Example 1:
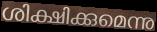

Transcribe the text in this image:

ശിക്ഷിക്കുമെന്നു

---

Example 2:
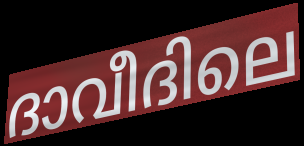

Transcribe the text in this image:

ദാവീദിലെ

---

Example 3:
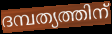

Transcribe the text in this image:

ദമ്പത്യത്തിന്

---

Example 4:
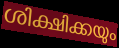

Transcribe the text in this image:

ശിക്ഷിക്കയും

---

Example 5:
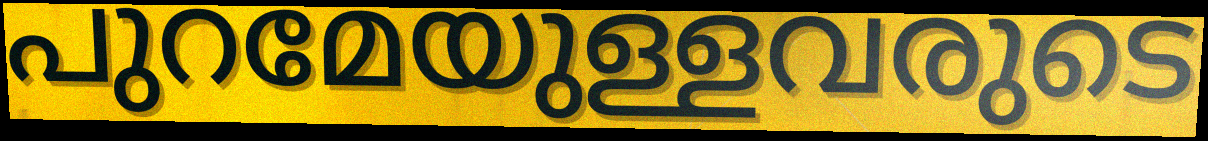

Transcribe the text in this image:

പുറമേയുള്ളവരുടെ